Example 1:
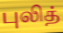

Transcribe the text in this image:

புலித்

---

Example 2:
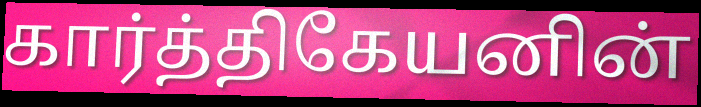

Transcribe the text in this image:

கார்த்திகேயனின்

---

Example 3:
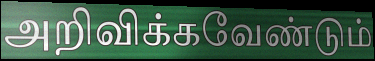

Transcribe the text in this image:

அறிவிக்கவேண்டும்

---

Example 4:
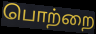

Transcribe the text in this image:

பொற்றை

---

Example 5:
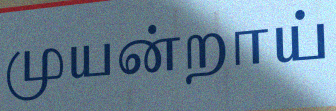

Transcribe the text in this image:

முயன்றாய்